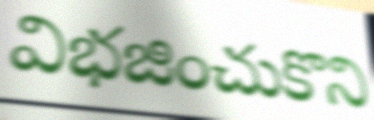
విభజించుకొని